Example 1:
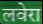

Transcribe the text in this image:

लवेरा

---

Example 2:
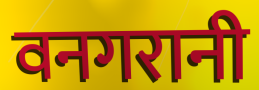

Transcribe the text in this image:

वनगरानी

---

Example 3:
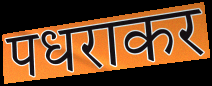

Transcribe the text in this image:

पधराकर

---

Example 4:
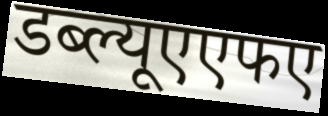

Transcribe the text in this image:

डब्ल्यूएएफए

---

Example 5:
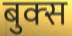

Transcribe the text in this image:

बुक्‍स